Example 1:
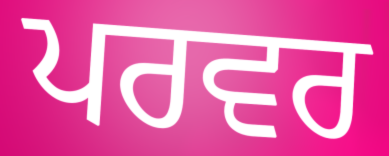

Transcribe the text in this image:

ਪਰਵਰ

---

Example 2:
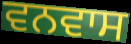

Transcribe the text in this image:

ਵਨਵਾਸ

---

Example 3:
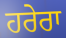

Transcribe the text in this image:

ਹਰੇਰਾ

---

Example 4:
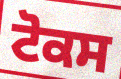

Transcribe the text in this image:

ਟੋਕਸ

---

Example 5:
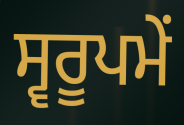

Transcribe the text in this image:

ਸ੍ਵਰੂਪਮੇਂ